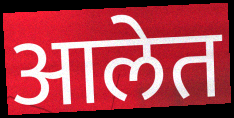
आलेत